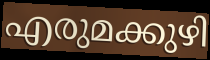
എരുമക്കുഴി